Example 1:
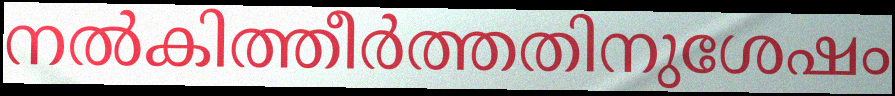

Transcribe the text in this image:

നൽകിത്തീർത്തതിനുശേഷം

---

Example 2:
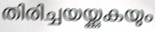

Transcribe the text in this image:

തിരിച്ചയയ്ക്കുകയും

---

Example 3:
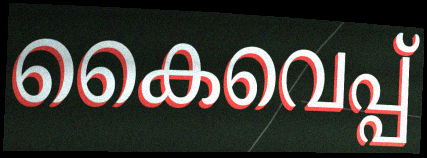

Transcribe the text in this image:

കൈവെപ്പ്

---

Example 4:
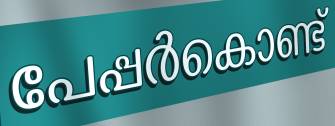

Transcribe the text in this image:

പേപ്പർകൊണ്ട്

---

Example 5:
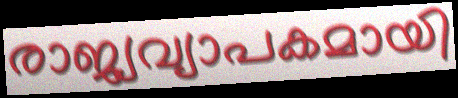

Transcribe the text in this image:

രാജ്യവ്യാപകമായി